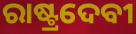
ରାଷ୍ଟ୍ରଦେବୀ